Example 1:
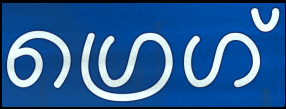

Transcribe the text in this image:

ഗ്രെഗ്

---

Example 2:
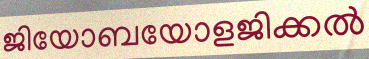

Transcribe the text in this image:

ജിയോബയോളജിക്കൽ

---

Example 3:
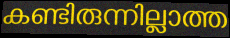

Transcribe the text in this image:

കണ്ടിരുന്നില്ലാത്ത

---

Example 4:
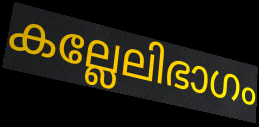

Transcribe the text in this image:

കല്ലേലിഭാഗം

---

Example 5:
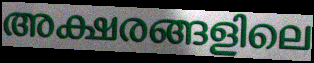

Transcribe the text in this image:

അക്ഷരങ്ങളിലെ